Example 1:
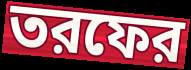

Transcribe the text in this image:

তরফের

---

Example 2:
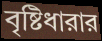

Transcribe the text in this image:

বৃষ্টিধারার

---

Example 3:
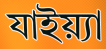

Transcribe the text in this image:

যাইয়্যা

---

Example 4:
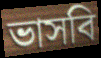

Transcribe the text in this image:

ভাসবি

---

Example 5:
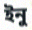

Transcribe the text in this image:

ইনু